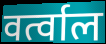
वर्त्वाल